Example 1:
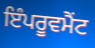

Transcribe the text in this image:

ਇੰਪਰੂਵਮੈਂਟ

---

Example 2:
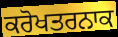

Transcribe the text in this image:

ਕਰੋਖਤਰਨਾਕ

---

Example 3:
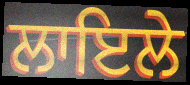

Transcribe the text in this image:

ਲਾਇਲੇ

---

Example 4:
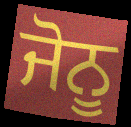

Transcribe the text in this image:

ਜੋਨੂ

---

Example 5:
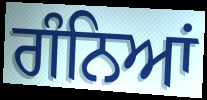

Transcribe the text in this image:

ਗੰਨਿਆਂ